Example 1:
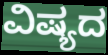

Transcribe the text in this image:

ವಿಷ್ಯದ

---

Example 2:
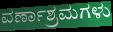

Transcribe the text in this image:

ವರ್ಣಾಶ್ರಮಗಳು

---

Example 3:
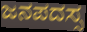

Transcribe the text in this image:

ಜನಪದಸ್ಸ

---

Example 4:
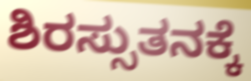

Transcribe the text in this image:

ಶಿರಸ್ಸುತನಕ್ಕೆ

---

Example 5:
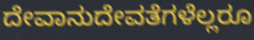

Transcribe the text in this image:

ದೇವಾನುದೇವತೆಗಳೆಲ್ಲರೂ